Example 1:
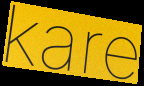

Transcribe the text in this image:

kare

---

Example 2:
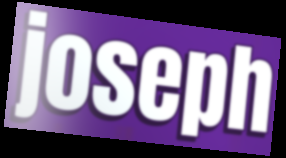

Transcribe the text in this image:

joseph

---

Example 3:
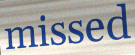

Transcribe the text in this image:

missed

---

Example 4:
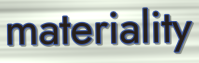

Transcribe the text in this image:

materiality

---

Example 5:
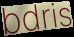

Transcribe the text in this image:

bdris